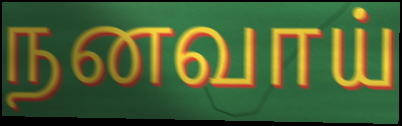
நனவாய்